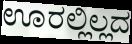
ಊರಲ್ಲಿಲ್ಲದ